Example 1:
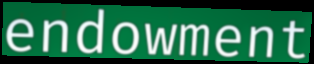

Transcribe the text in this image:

endowment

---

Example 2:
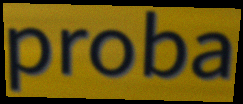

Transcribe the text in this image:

proba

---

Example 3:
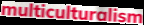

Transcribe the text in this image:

multiculturalism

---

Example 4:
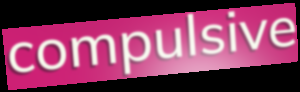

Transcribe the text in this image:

compulsive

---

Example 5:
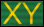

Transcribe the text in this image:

XY